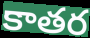
కాతర